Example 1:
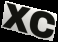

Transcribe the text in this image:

XC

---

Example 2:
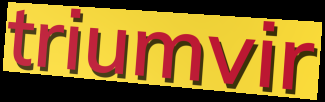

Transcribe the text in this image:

triumvir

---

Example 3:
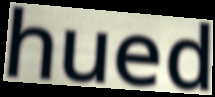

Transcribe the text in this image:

hued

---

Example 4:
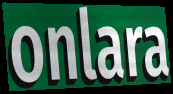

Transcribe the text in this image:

onlara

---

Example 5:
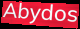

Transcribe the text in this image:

Abydos